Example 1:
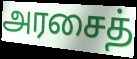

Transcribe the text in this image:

அரசைத்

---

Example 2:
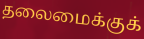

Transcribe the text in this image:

தலைமைக்குக்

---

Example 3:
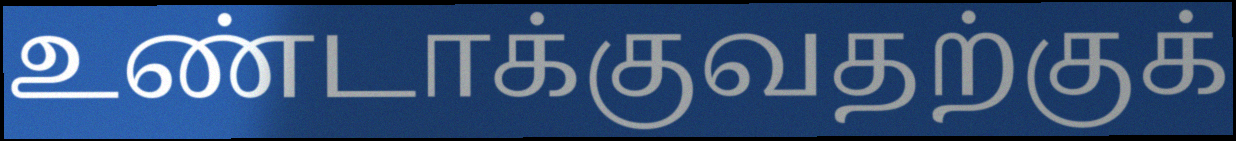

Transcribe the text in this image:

உண்டாக்குவதற்குக்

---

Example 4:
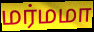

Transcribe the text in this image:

மர்மமா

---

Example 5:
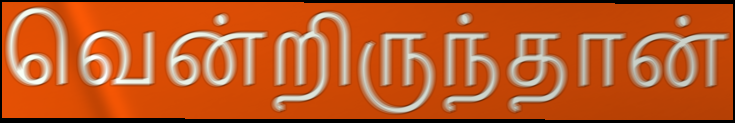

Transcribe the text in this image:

வென்றிருந்தான்